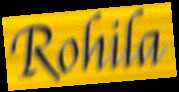
Rohila